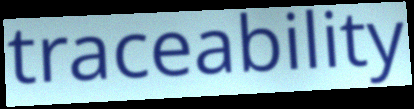
traceability